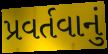
પ્રવર્તવાનું